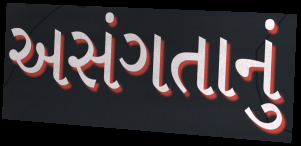
અસંગતાનું